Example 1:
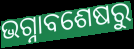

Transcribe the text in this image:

ଭଗ୍ନାବଶେଷରୁ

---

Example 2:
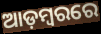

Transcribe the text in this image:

ଆଡ଼ମ୍ୱରରେ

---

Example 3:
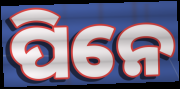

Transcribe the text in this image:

ପିନେ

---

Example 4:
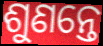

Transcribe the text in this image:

ଶୁଣନ୍ତେ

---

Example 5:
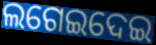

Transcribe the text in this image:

ଲଗେଇଦେଇ